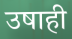
उषाही